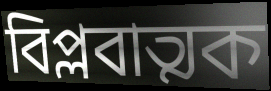
বিপ্লবাত্মক